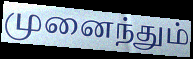
முனைந்தும்